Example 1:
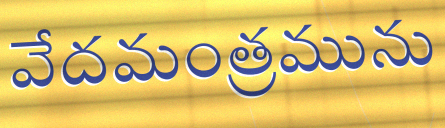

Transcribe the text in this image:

వేదమంత్రమును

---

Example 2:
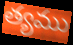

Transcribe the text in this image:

త్యము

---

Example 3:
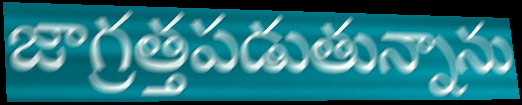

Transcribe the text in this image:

జాగ్రత్తపడుతున్నాను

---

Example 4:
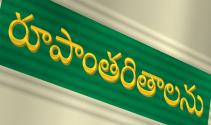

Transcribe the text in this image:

రూపాంతరితాలను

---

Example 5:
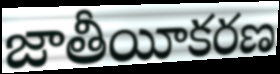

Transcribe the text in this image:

జాతీయీకరణ